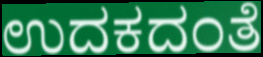
ಉದಕದಂತೆ